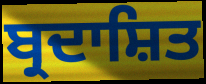
ਬ੍ਰਦਾਸ਼ਿਤ